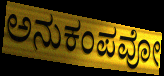
ಅನುಕಂಪವೋ